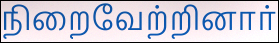
நிறைவேற்றினார்